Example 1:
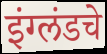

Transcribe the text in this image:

इंग्लंडचे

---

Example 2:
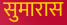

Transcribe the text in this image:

सुमारास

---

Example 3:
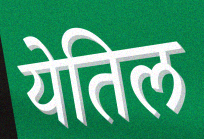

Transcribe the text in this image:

येतिल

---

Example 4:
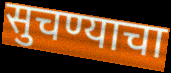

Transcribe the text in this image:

सुचण्याचा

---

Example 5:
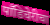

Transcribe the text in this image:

पाँडिचेरीचा